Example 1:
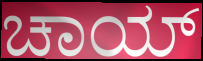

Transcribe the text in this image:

ಚಾಯ್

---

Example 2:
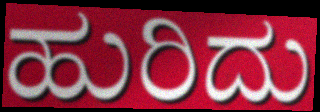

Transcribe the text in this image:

ಹುರಿದು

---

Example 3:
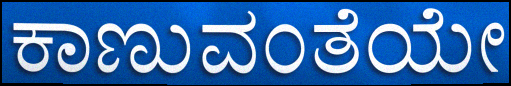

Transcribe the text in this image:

ಕಾಣುವಂತೆಯೇ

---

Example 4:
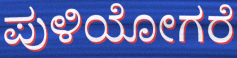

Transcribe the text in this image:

ಪುಳಿಯೋಗರೆ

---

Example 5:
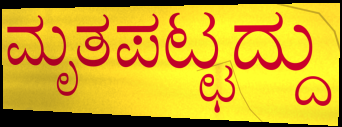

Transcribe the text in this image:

ಮೃತಪಟ್ಟದ್ದು